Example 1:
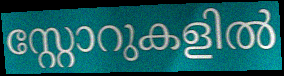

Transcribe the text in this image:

സ്റ്റോറുകളിൽ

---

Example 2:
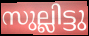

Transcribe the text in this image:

സുല്ലിട്ടു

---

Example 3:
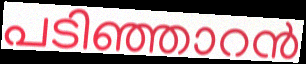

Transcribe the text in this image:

പടിഞ്ഞാറൻ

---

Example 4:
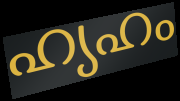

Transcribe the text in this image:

ഹ്യഹം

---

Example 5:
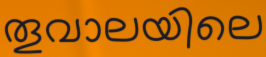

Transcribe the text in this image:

തൂവാലയിലെ